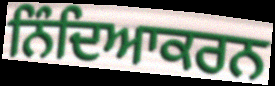
ਨਿੰਦਿਆਕਰਨ